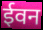
ईवन